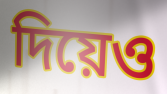
দিয়েও